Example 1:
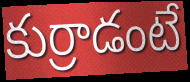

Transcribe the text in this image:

కుర్రాడంటే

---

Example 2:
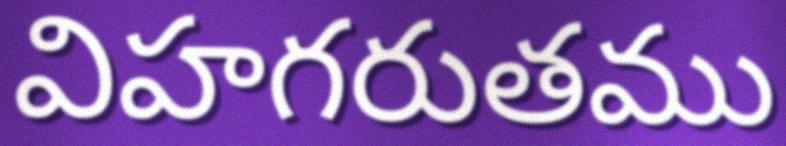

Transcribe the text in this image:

విహగరుతము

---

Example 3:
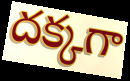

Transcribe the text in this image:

దక్కగా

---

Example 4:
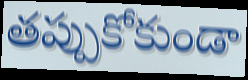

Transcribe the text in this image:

తప్పుకోకుండా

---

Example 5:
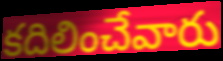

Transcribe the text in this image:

కదిలించేవారు